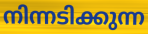
നിന്നടിക്കുന്ന